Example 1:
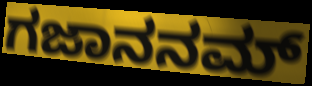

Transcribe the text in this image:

ಗಜಾನನಮ್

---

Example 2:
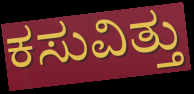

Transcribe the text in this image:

ಕಸುವಿತ್ತು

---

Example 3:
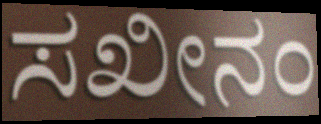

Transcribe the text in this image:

ಸಖೀನಂ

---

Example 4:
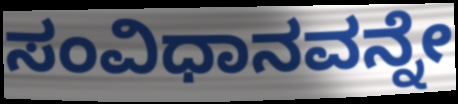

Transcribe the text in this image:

ಸಂವಿಧಾನವನ್ನೇ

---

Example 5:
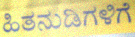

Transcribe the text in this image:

ಹಿತನುಡಿಗಳಿಗೆ